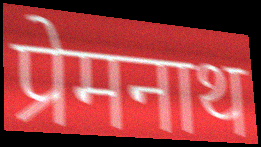
प्रेमनाथ